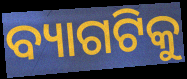
ବ୍ୟାଗଟିକୁ